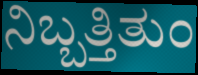
ನಿಬ್ಬತ್ತಿತುಂ